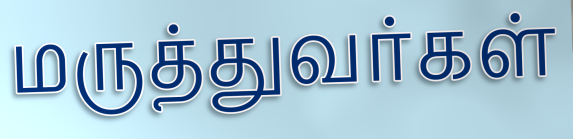
மருத்துவர்கள்